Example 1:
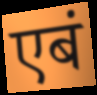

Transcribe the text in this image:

एबं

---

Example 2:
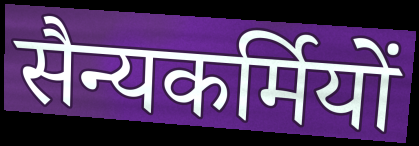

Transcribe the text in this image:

सैन्यकर्मियों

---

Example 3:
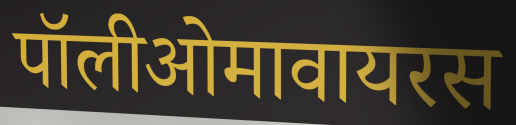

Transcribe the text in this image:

पॉलीओमावायरस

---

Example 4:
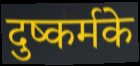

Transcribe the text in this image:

दुष्कर्मके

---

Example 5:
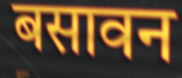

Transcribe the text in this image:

बसावन